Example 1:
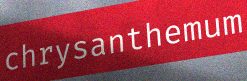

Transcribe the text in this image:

chrysanthemum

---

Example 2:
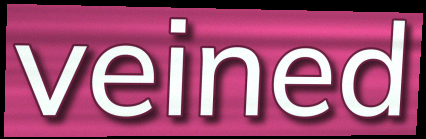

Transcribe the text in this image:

veined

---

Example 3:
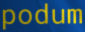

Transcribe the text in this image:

podum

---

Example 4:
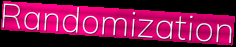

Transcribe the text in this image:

Randomization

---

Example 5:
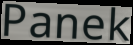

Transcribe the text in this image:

Panek